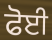
ਫੋਈ